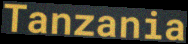
Tanzania